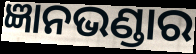
ଜ୍ଞାନଭଣ୍ଡାର